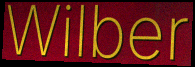
Wilber